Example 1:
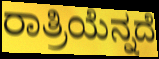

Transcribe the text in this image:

ರಾತ್ರಿಯೆನ್ನದೆ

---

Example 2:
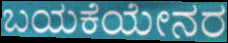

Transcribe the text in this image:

ಬಯಕೆಯೇನರ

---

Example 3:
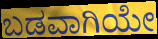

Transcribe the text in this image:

ಬಡವಾಗಿಯೇ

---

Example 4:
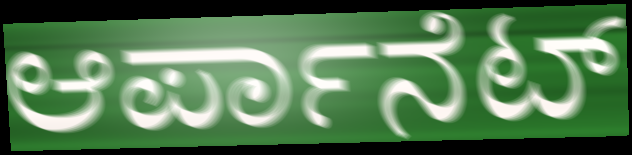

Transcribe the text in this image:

ಆರ್ಪಾನೆಟ್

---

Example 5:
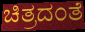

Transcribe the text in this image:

ಚಿತ್ರದಂತೆ